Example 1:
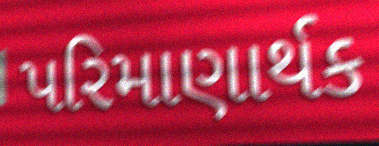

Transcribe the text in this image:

પરિમાણાર્થક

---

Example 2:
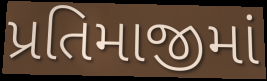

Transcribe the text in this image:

પ્રતિમાજીમાં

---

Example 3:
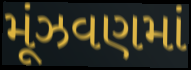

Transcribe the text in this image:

મૂંઝવણમાં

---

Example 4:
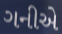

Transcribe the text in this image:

ગનીએ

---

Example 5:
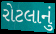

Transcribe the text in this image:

રોટલાનું